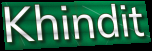
Khindit